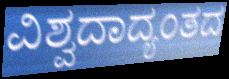
ವಿಶ್ವದಾದ್ಯಂತದ